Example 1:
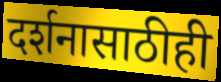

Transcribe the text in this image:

दर्शनासाठीही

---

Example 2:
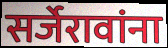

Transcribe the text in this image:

सर्जेरावांना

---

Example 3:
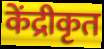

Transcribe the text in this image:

केंद्रीकृत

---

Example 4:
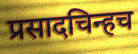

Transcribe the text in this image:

प्रसादचिन्हच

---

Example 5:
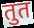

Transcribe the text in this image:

तुत